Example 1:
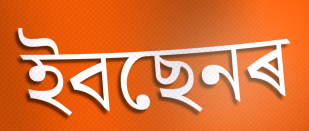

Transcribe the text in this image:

ইবছেনৰ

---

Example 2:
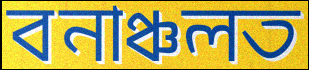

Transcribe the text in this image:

বনাঞ্চলত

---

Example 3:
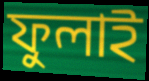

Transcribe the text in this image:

ফুলাই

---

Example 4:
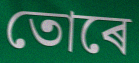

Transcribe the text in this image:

তোৰে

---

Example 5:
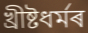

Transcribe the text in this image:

খ্ৰীষ্টধৰ্মৰ